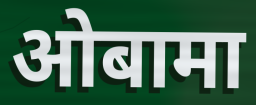
ओबामा